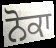
ਨੋਕਾ